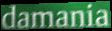
damania